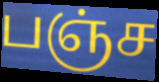
பஞ்ச